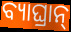
ବ୍ୟାଘ୍ରାନ୍